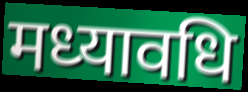
मध्‍यावधि